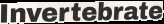
Invertebrate